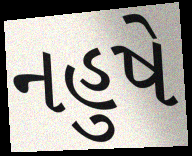
નહુષે